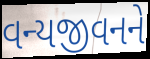
વન્યજીવનને